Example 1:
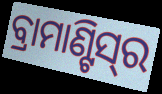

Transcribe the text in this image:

ବ୍ରାମାଣ୍ଟିସ୍‌ର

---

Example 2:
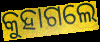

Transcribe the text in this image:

କୁହାଗଲେ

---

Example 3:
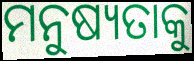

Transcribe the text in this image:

ମନୁଷ୍ୟତାକୁ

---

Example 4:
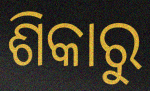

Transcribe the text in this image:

ଶିକାରୁ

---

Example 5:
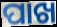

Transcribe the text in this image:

ପାଖ